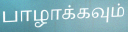
பாழாக்கவும்